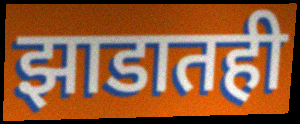
झाडातही